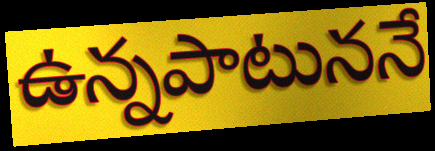
ఉన్నపాటుననే